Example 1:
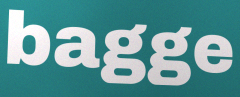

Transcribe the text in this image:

bagge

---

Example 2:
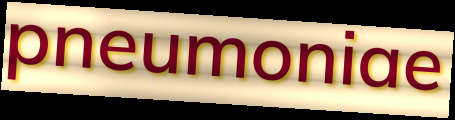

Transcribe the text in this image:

pneumoniae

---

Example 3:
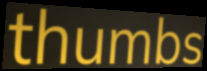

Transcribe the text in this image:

thumbs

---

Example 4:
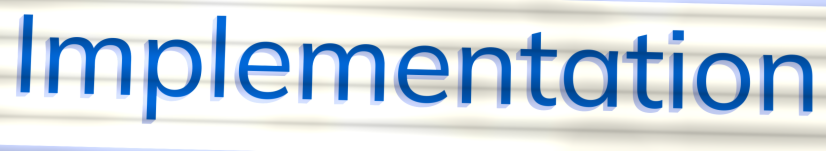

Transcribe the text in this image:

Implementation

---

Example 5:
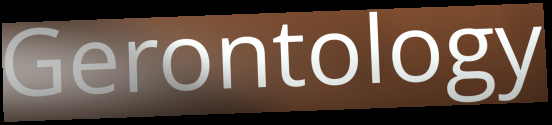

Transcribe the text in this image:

Gerontology